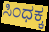
ಸಿಂಧಕ್ಕ